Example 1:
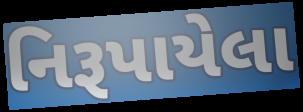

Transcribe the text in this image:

નિરૂપાયેલા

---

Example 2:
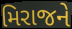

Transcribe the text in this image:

મિરાજને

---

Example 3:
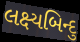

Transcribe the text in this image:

લક્ષ્યબિન્દુ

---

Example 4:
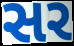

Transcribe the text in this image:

સર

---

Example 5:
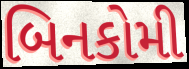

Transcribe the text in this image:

બિનકોમી